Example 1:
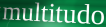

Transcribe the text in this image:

multitudo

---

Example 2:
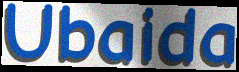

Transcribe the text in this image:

Ubaida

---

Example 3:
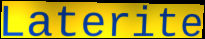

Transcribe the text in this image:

Laterite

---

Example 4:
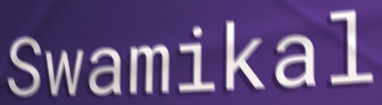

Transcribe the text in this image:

Swamikal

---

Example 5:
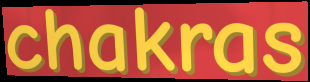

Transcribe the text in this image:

chakras